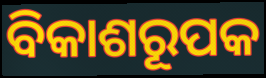
ବିକାଶରୂପକ